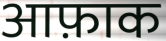
आफ़ाक